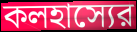
কলহাস্যের